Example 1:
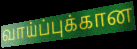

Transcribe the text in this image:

வாய்ப்புக்கான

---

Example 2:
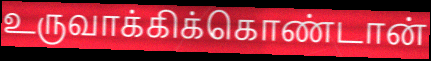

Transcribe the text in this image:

உருவாக்கிக்கொண்டான்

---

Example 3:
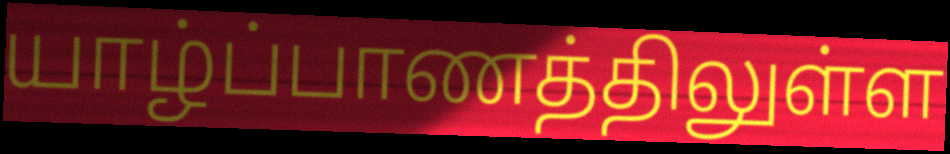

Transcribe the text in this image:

யாழ்ப்பாணத்திலுள்ள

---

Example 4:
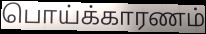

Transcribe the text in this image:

பொய்க்காரணம்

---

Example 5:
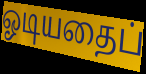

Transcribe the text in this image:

ஓடியதைப்